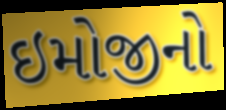
ઇમોજીનો